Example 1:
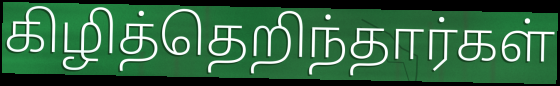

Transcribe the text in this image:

கிழித்தெறிந்தார்கள்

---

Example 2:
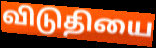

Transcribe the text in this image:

விடுதியை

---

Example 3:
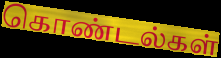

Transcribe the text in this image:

கொண்டல்கள்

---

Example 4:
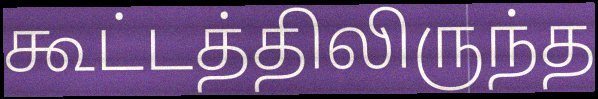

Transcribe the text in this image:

கூட்டத்திலிருந்த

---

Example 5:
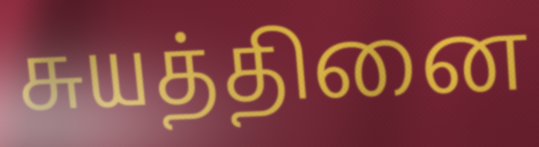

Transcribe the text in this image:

சுயத்தினை